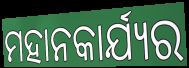
ମହାନକାର୍ଯ୍ୟର